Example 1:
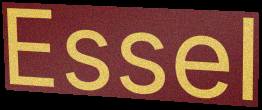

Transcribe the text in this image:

Essel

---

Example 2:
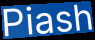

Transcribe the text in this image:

Piash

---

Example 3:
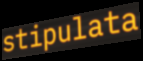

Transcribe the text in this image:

stipulata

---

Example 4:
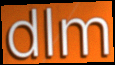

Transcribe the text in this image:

dlm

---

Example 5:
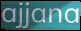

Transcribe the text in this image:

ajjana